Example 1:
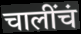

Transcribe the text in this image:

चालींचं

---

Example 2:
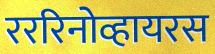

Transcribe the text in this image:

रररिनोव्हायरस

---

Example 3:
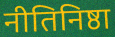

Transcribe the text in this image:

नीतिनिष्ठा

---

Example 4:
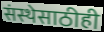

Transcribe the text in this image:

संस्थेसाठीही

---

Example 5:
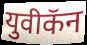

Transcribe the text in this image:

युवीकॅन